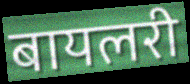
बायलरी